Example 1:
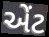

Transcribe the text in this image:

એંટ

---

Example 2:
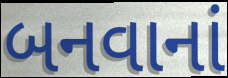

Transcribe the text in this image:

બનવાનાં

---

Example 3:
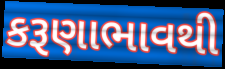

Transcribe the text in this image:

કરૂણાભાવથી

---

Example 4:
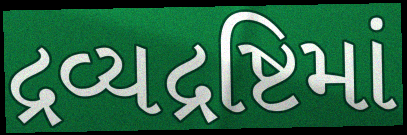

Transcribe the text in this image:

દ્રવ્યદ્રષ્ટિમાં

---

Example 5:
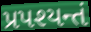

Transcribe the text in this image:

પ્રપશ્યન્તં